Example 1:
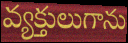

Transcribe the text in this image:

వ్యక్తులుగాను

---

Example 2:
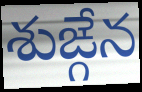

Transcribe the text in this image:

శుఙ్గేన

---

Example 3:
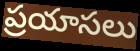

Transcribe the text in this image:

ప్రయాసలు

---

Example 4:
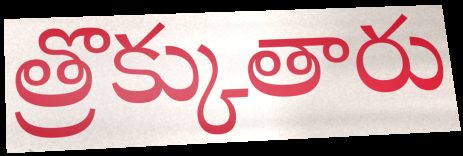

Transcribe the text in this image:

త్రొక్కుతారు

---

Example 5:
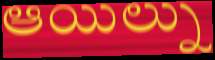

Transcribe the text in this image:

ఆయిల్ను